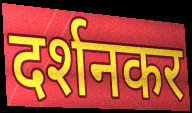
दर्शनकर